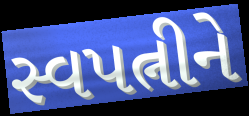
સ્વપત્નીને